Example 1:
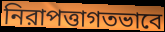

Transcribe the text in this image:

নিরাপত্তাগতভাবে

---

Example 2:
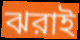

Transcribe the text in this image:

ঝরাই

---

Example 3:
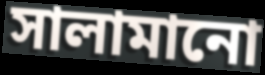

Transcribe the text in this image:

সালামানো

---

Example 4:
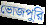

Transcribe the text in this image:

ভোজপুরি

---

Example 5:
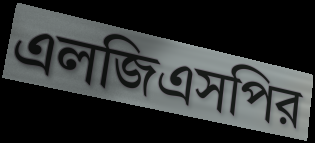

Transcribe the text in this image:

এলজিএসপির